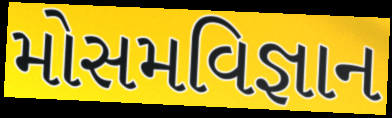
મોસમવિજ્ઞાન